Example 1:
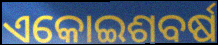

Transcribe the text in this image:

ଏକୋଇଶବର୍ଷ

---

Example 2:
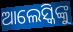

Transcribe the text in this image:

ଆଲେସ୍କିଙ୍କୁ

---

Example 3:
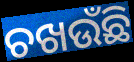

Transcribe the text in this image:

ଚଖଉଁଛି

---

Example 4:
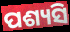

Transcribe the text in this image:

ପଶ୍ୟସି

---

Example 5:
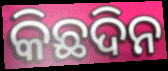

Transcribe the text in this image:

କିଛଦିନ